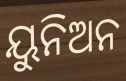
ୟୁନିଅନ